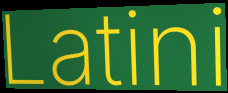
Latini